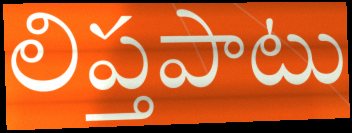
లిప్తపాటు